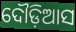
ଦୌଡ଼ିଆସ